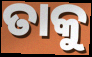
ତାକୁ